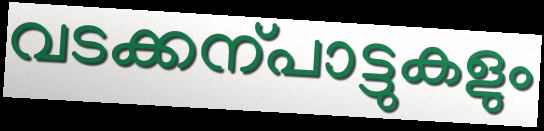
വടക്കന്പാട്ടുകളും